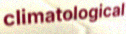
climatological